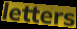
letters